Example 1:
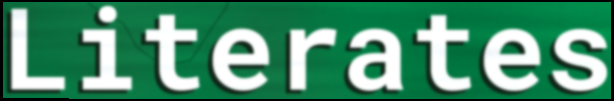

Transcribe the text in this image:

Literates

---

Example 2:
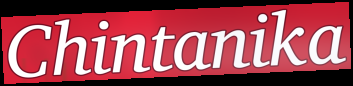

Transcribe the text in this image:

Chintanika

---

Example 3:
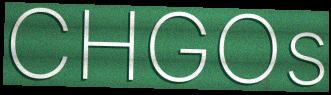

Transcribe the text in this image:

CHGOs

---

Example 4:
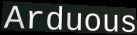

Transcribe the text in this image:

Arduous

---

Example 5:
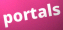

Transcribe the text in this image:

portals